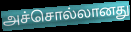
அச்சொல்லானது